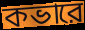
কভারে